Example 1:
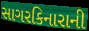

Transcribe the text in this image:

સાગરકિનારાની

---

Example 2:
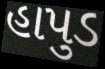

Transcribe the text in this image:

હાપુડ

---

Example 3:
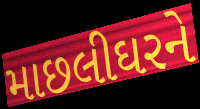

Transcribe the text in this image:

માછલીઘરને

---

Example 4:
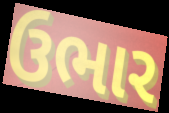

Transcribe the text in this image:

ઉભાર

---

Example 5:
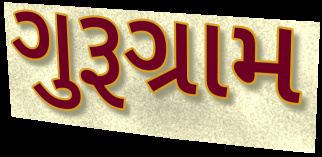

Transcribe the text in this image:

ગુરૂગ્રામ